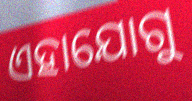
ଏହାଯୋଗୁ